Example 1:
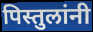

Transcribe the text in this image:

पिस्तुलांनी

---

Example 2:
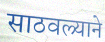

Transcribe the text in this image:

साठवल्याने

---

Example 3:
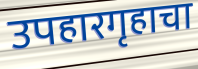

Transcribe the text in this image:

उपहारगृहाचा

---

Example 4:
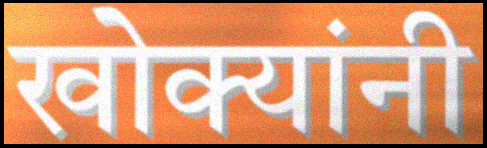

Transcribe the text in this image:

खोक्यांनी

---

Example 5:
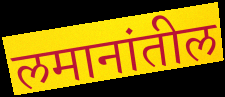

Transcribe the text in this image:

लमानांतील